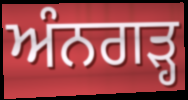
ਅੰਨਗੜ੍ਹ